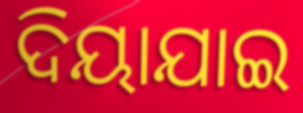
ଦିୟାଯାଇ